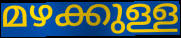
മഴക്കുള്ള